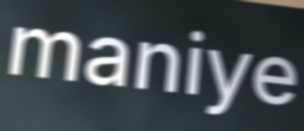
maniye